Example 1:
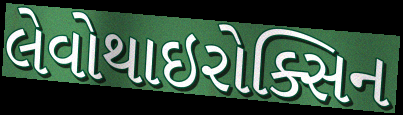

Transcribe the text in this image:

લેવોથાઇરોક્સિન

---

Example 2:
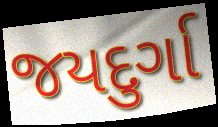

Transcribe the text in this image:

જયદુર્ગા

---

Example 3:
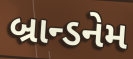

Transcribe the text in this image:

બ્રાન્ડનેમ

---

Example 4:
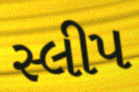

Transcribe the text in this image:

સ્લીપ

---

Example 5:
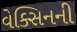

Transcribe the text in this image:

વેક્સિનની